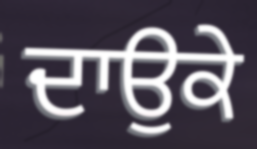
ਦਾਉਕੇ